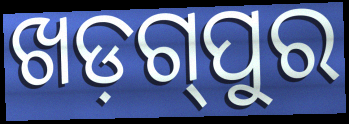
ଖଡ଼ଗ୍‌ପୁର